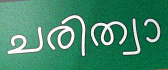
ചരിത്വാ